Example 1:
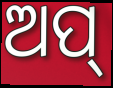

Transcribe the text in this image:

ଅପ୍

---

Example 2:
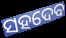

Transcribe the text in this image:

ସହଦେବ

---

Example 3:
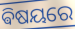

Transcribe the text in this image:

ଵିଷୟରେ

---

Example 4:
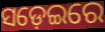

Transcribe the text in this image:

ସଡ଼େଇରେ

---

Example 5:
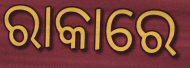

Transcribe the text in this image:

ରାକାରେ